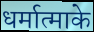
धर्मात्माके